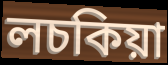
লচকিয়া